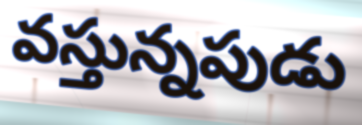
వస్తున్నపుడు